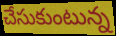
చేసుకుంటున్న